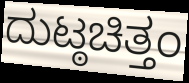
ದುಟ್ಠಚಿತ್ತಂ